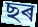
ছৰ